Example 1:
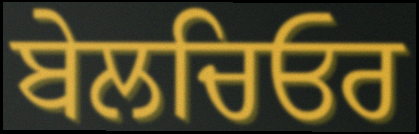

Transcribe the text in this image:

ਬੇਲਚਿਓਰ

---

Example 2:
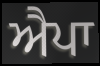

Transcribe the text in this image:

ਐਪਾ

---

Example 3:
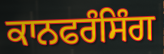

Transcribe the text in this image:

ਕਾਨਫਰੰਸਿੰਗ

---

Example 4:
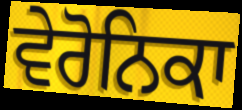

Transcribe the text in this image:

ਵੇਰੋਨਿਕਾ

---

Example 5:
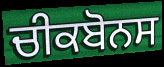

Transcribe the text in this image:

ਚੀਕਬੋਨਸ